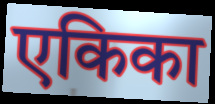
एकिका